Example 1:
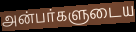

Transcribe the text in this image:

அன்பர்களுடைய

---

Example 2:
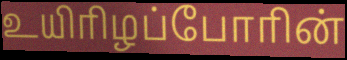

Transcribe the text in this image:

உயிரிழப்போரின்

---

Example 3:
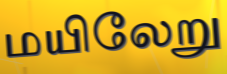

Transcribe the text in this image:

மயிலேறு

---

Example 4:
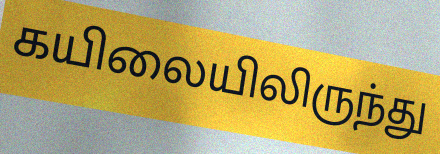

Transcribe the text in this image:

கயிலையிலிருந்து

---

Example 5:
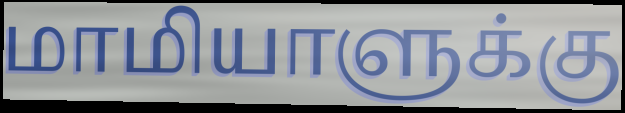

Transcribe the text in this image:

மாமியாளுக்கு